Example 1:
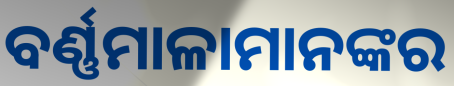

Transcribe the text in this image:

ବର୍ଣ୍ଣମାଳାମାନଙ୍କର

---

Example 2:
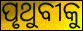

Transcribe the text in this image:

ପୃଥୁବୀକୁ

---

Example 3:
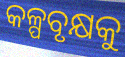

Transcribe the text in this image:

କଳ୍ପବୃକ୍ଷକୁ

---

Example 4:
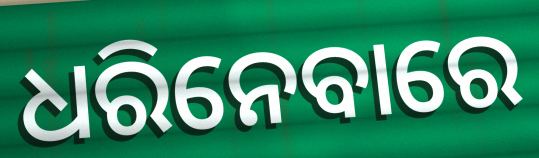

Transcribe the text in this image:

ଧରିନେବାରେ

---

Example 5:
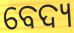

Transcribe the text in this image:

ବେଦ୍ୟ